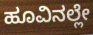
ಹೂವಿನಲ್ಲೇ